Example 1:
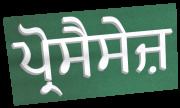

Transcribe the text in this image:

ਪ੍ਰੋਸੈਸੇਜ਼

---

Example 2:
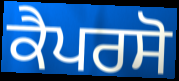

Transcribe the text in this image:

ਕੈਪਰਸੋ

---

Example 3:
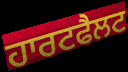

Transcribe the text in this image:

ਹਾਰਟਫੈਲਟ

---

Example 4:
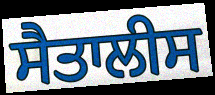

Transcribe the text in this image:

ਸੈਤਾਲੀਸ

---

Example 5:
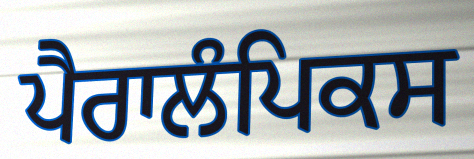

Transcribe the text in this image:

ਪੈਰਾਲੰਪਿਕਸ